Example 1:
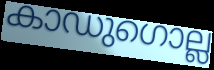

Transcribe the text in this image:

കാഡുഗൊല്ല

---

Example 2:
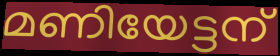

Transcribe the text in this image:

മണിയേട്ടന്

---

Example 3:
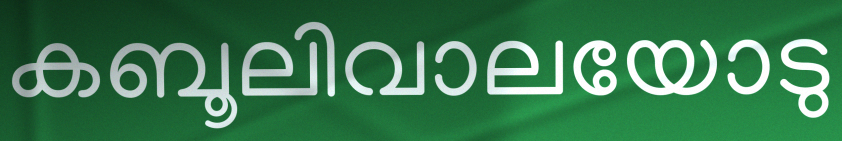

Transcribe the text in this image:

കബൂലിവാലയോടു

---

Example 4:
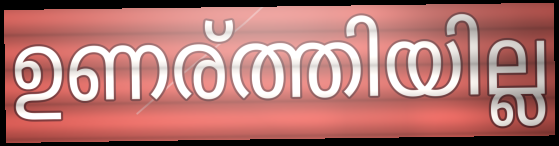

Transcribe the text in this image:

ഉണര്ത്തിയില്ല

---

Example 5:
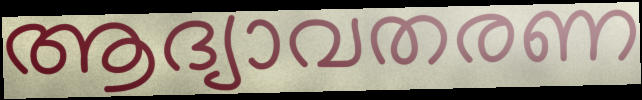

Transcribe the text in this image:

ആദ്യാവതരണ